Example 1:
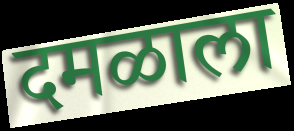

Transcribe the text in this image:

दमळाला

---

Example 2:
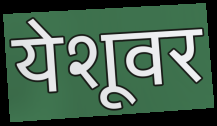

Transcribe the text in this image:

येशूवर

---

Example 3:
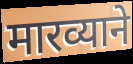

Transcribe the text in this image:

मारव्याने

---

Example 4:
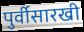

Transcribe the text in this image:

पुर्वीसारखी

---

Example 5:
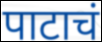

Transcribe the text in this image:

पाटाचं